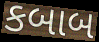
કબાબ